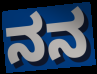
ನನ